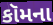
કૉમના